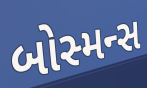
બોસ્મન્સ